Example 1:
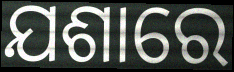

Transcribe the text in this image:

ଯଶାରେ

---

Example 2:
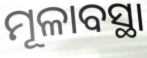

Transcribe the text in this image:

ମୂଳାବସ୍ଥା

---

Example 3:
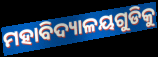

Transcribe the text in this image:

ମହାବିଦ୍ୟାଳୟଗୁଡିକୁ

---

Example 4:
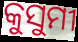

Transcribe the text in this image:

କୁସୁମୀ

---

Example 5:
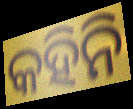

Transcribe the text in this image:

କହିନି